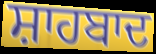
ਸ਼ਾਹਬਾਦ